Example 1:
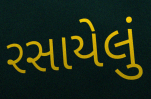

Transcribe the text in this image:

રસાયેલું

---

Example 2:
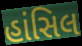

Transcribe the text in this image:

હાંસિલ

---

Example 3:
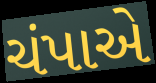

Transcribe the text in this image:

ચંપાએ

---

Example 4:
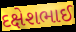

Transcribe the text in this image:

દક્ષેશભાઈ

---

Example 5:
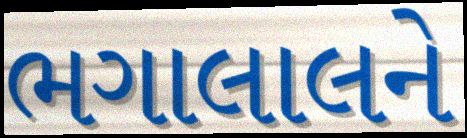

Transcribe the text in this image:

ભગાલાલને